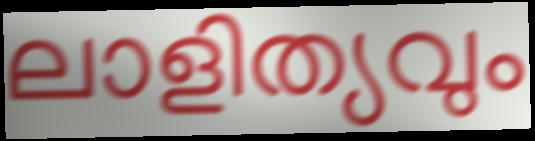
ലാളിത്യവും